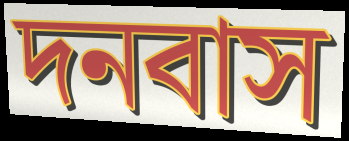
দনবাস